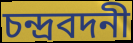
চন্দ্রবদনী